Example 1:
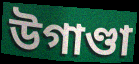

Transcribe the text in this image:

উগাণ্ডা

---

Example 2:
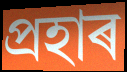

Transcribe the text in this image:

প্ৰহাৰ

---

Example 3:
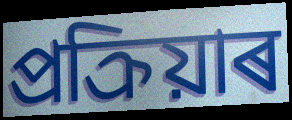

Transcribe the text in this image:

প্ৰক্ৰিয়াৰ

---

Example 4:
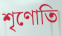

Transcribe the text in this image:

শৃণোতি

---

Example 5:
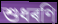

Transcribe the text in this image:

শুধৰণি